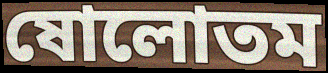
ষোলোতম